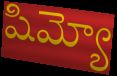
షిమ్యో